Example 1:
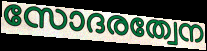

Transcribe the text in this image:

സോദരത്വേന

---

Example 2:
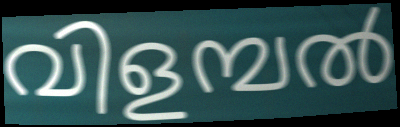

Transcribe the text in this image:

വിളമ്പൽ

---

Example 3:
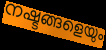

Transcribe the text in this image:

നഷ്ടങ്ങളെയും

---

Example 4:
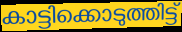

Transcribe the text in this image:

കാട്ടിക്കൊടുത്തിട്ട്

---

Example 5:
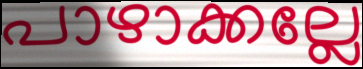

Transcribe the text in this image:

പാഴാക്കല്ലേ